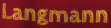
Langmann